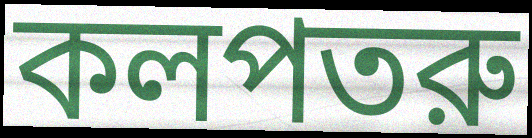
কলপতরু